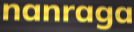
nanraga